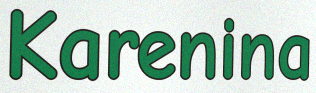
Karenina